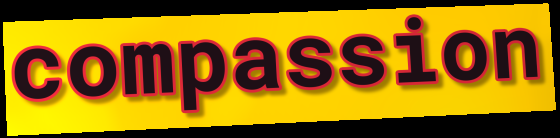
compassion